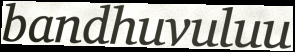
bandhuvuluu